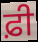
ਫ਼ੀ